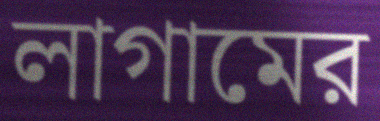
লাগামের